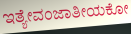
ಇತ್ಯೇವಂಜಾತೀಯಕೋ